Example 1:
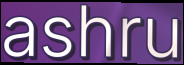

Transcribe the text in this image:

ashru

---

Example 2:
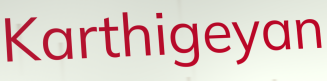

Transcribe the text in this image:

Karthigeyan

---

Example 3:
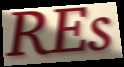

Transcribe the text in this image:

REs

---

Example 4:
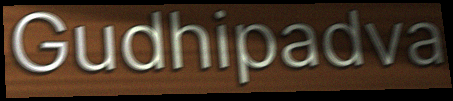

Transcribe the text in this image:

Gudhipadva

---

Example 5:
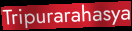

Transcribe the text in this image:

Tripurarahasya